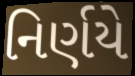
નિર્ણયે